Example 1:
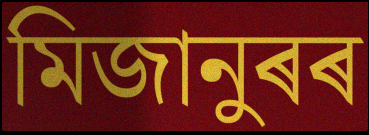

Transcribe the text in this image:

মিজানুৰৰ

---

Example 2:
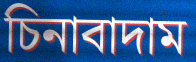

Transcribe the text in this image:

চিনাবাদাম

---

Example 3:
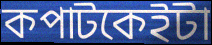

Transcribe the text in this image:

কপাটকেইটা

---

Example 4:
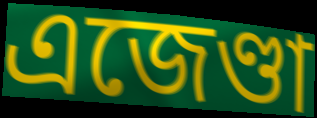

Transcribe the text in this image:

এজেণ্ডা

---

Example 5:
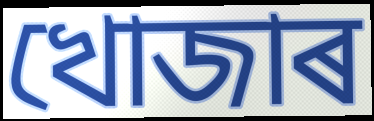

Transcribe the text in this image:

খোজাৰ